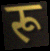
रू